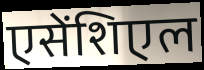
एसेंशिएल